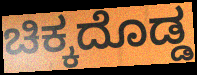
ಚಿಕ್ಕದೊಡ್ಡ